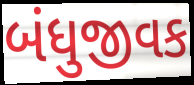
બંધુજીવક